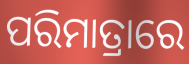
ପରିମାତ୍ରାରେ